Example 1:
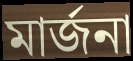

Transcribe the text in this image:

মার্জনা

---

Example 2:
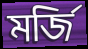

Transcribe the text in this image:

মর্জি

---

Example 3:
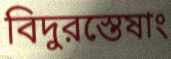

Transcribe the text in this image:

বিদুরস্তেষাং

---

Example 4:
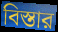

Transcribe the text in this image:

বিস্তার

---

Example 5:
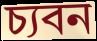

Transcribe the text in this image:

চ্যবন